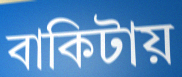
বাকিটায়